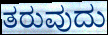
ತರುವುದು